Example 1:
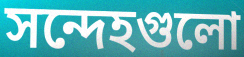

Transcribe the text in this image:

সন্দেহগুলো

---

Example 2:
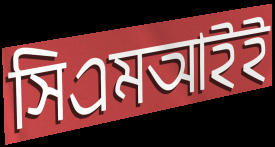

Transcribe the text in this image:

সিএমআইই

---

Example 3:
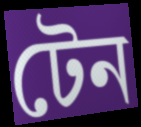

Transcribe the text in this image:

টেন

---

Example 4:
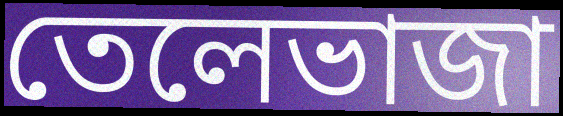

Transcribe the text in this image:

তেলেভাজা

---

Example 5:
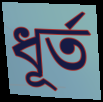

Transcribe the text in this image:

ধূর্ত